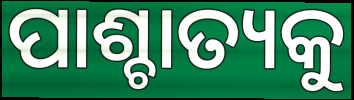
ପାଶ୍ଚାତ୍ୟକୁ